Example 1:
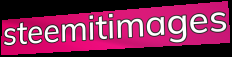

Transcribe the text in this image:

steemitimages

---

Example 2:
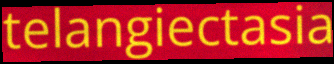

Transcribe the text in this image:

telangiectasia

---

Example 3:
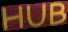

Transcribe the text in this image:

HUB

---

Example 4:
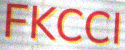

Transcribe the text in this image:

FKCCI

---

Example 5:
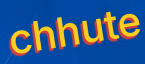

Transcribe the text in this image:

chhute